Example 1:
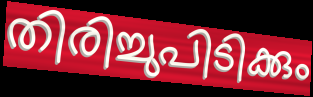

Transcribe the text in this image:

തിരിച്ചുപിടിക്കും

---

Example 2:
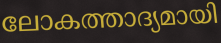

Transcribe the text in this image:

ലോകത്താദ്യമായി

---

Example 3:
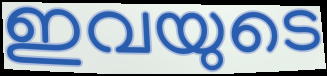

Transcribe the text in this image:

ഇവയുടെ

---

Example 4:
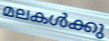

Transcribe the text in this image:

മലകൾക്കു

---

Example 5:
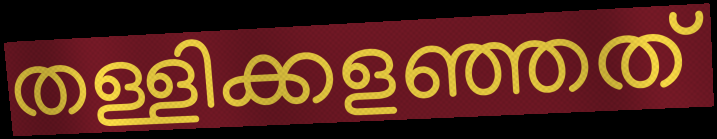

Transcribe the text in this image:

തള്ളിക്കളഞ്ഞത്